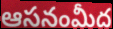
ఆసనంమీద